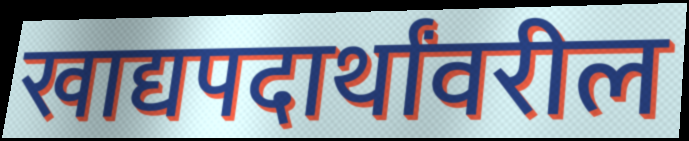
खाद्यपदार्थांवरील